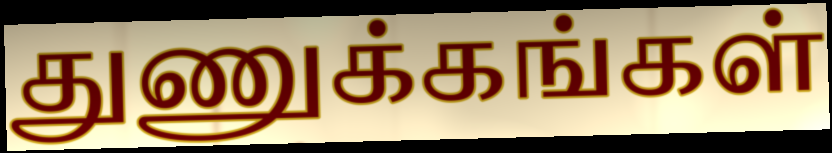
துணுக்கங்கள்